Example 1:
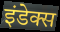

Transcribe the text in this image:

इंडेक्स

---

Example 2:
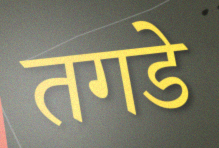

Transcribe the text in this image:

तगडे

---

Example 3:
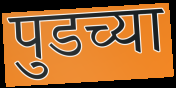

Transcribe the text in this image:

पुडच्या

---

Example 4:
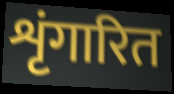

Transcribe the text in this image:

शृंगारित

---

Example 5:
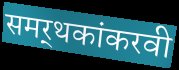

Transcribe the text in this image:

समर्थकांकरवी